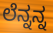
ಲೆನ್ನನ್ನ